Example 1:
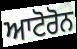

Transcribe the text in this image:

ਆਟੋਰੋਨ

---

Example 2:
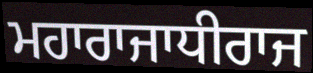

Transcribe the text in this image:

ਮਹਾਰਾਜਾਧੀਰਾਜ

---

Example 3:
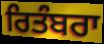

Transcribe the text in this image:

ਰਿਤੰਬਰਾ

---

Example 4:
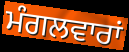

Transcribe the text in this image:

ਮੰਗਲਵਾਰਾਂ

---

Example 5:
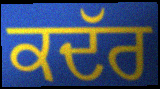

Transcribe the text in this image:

ਕਦੱਰ